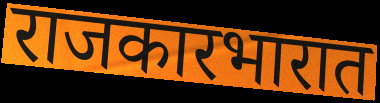
राजकारभारात